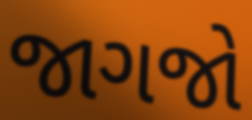
જાગજો